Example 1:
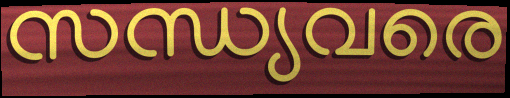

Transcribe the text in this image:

സന്ധ്യവരെ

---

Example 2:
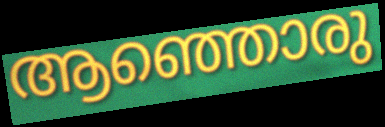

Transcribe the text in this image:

ആഞ്ഞൊരു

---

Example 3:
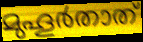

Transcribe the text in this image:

മുഹൂർതാത്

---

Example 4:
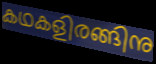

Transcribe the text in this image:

കഥകളിരങ്ങിനു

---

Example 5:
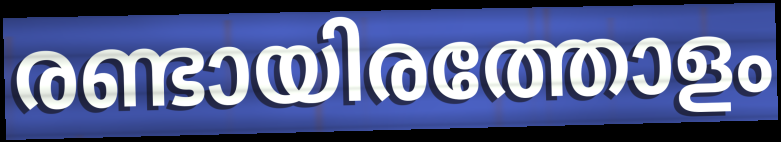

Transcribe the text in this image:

രണ്ടായിരത്തോളം